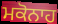
ਮਕੋਨਾਹ